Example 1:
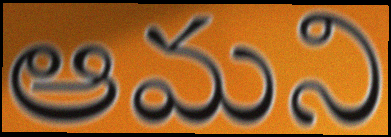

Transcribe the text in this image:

ఆమని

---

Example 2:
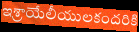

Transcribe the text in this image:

ఇశ్రాయేలీయులకందరికి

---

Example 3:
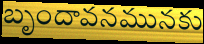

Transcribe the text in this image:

బృందావనమునకు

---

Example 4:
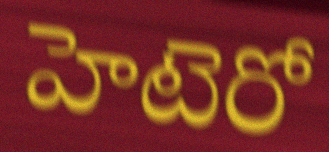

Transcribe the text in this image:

హెటెరో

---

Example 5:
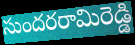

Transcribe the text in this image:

సుందరరామిరెడ్డి